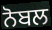
ਨੋਬਲ